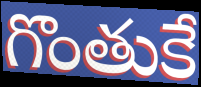
గొంతుకే